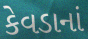
કેવડાનાં